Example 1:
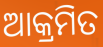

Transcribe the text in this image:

ଆକ୍ରମିତ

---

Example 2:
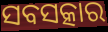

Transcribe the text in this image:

ସବସତ୍କାର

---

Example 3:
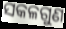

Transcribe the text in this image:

ସକଳଗୁଣ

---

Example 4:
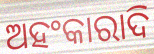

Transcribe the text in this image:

ଅହଂକାରାଦି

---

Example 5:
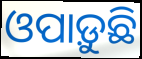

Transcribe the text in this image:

ଓପାଡ଼ୁଛି